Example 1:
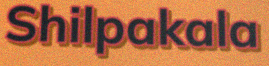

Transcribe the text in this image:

Shilpakala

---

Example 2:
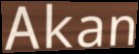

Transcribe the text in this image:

Akan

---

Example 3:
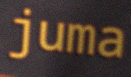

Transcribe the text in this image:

juma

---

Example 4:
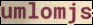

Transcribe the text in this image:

umlomjs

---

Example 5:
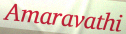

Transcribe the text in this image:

Amaravathi